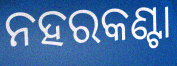
ନହରକଣ୍ଟା